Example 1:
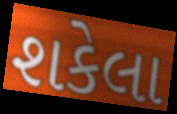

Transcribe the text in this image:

શકેલા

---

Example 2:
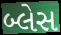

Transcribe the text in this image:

બ્લેસ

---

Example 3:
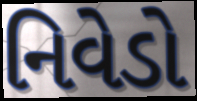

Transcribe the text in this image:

નિવેડો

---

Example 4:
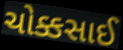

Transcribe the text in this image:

ચોક્કસાઈ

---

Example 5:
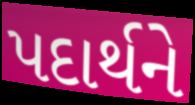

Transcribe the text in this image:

પદાર્થને